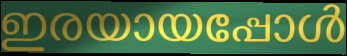
ഇരയായപ്പോൾ